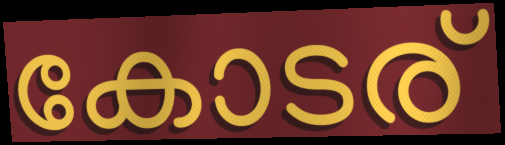
കോടര്